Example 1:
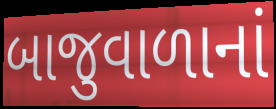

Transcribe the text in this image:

બાજુવાળાનાં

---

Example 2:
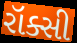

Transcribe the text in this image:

રૉક્સી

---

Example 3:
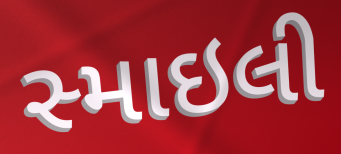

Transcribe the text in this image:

સ્માઇલી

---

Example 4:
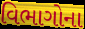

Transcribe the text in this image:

વિભાગોના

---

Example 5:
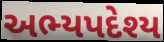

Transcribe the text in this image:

અભ્યપદેશ્ય